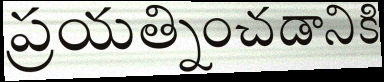
ప్రయత్నించడానికి